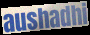
aushadhi